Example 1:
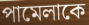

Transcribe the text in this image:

পামেলাকে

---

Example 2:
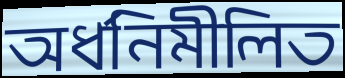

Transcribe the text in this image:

অর্ধনিমীলিত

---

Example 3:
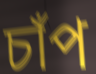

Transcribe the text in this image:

চাঁপ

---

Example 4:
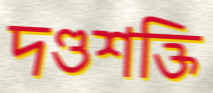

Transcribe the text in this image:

দণ্ডশক্তি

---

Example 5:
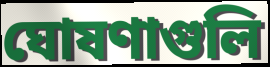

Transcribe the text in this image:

ঘোষণাগুলি